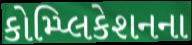
કોમ્પ્લિકેશનના